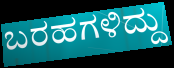
ಬರಹಗಳಿದ್ದು